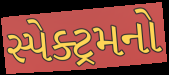
સ્પેક્ટ્રમનો